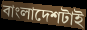
বাংলাদেশটাই